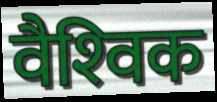
वैश्‍विक